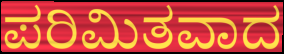
ಪರಿಮಿತವಾದ